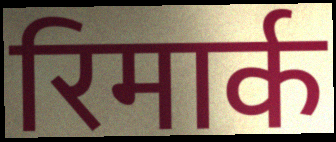
रिमार्क